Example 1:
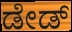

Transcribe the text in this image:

ಡೇಡ್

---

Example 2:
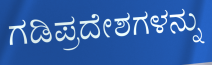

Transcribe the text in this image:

ಗಡಿಪ್ರದೇಶಗಳನ್ನು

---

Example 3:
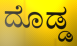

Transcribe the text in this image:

ದೊಡ್ಡ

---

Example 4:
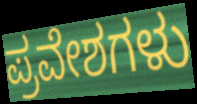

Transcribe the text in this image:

ಪ್ರವೇಶಗಳು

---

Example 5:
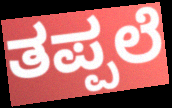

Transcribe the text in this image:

ತಪ್ಪಲೆ